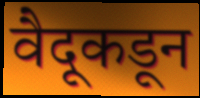
वैदूकडून